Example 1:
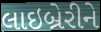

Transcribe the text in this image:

લાઇબ્રેરીને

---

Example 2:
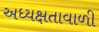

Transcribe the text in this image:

અધ્યક્ષતાવાળી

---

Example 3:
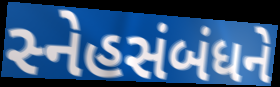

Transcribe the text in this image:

સ્નેહસંબંધને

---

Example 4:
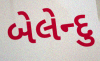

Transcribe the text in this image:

બેલેન્દુ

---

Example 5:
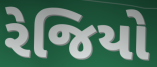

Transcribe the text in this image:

રેજિયો